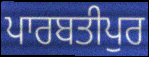
ਪਾਰਬਤੀਪੁਰ